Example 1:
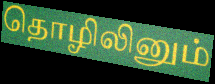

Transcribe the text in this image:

தொழிலினும்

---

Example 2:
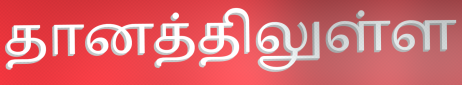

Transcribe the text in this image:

தானத்திலுள்ள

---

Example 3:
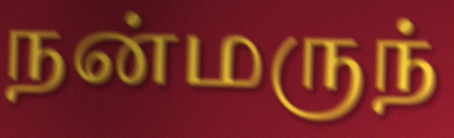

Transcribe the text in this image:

நன்மருந்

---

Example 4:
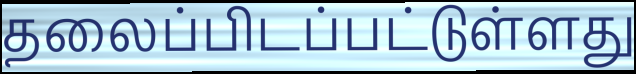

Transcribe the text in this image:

தலைப்பிடப்பட்டுள்ளது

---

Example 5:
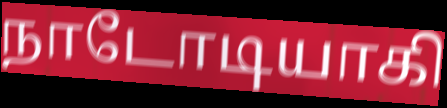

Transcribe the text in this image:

நாடோடியாகி